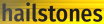
hailstones